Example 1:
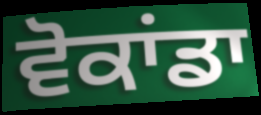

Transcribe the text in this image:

ਵੋਕਾਂਡਾ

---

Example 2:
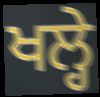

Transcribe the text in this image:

ਖਲ੍ਹੇ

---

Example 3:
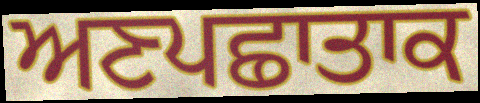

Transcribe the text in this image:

ਅਣਪਛਾਤਾਕ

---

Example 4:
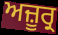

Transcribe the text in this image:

ਅਜ਼ੂਰ੍ਰ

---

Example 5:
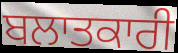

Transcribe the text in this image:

ਬਲਾਤਕਾਰੀ